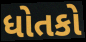
ધોતકો